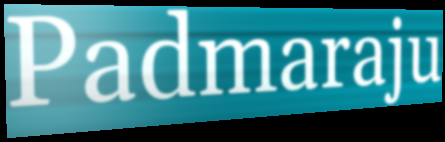
Padmaraju